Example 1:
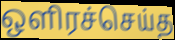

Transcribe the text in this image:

ஒளிரச்செய்த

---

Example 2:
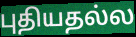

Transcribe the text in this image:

புதியதல்ல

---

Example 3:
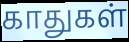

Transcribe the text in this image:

காதுகள்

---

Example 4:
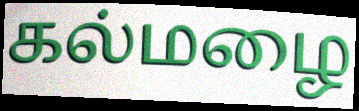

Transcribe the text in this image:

கல்மழை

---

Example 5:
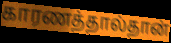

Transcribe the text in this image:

காரணத்தால்தான்